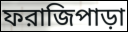
ফরাজিপাড়া